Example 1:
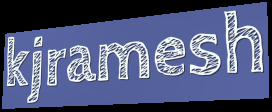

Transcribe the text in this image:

kjramesh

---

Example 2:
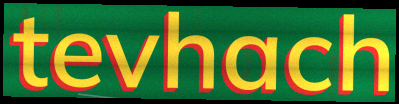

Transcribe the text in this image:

tevhach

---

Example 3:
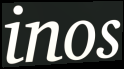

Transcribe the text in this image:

inos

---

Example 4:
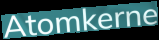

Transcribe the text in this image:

Atomkerne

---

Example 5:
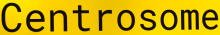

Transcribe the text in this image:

Centrosome